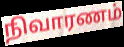
நிவாரணம்